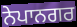
ਨੇਪਾਨਗਰ